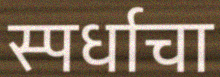
स्पर्धाचा